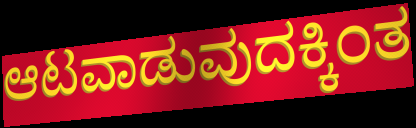
ಆಟವಾಡುವುದಕ್ಕಿಂತ